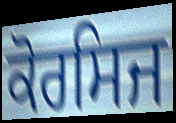
ਕੋਰਸਿਜ